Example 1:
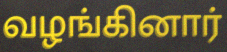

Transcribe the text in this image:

வழங்கினார்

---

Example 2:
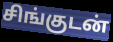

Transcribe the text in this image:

சிங்குடன்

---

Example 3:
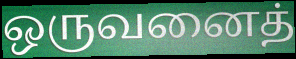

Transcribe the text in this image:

ஒருவனைத்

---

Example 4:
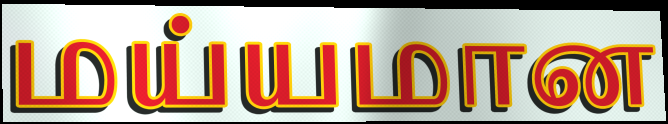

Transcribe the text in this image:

மய்யமான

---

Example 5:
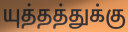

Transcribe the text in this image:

யுத்தத்துக்கு